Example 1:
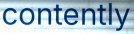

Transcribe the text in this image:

contently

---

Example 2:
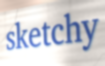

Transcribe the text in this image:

sketchy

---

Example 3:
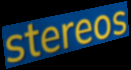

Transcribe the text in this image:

stereos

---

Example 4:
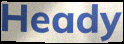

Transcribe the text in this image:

Heady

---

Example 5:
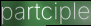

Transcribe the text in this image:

partciple